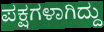
ಪಕ್ಷಗಳಾಗಿದ್ದು